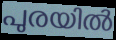
പുരയിൽ